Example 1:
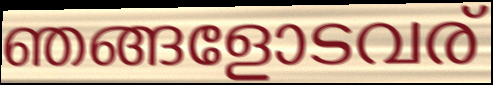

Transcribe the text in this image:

ഞങ്ങളോടവര്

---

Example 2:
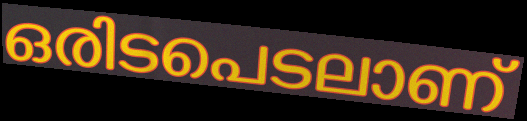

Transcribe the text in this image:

ഒരിടപെടലാണ്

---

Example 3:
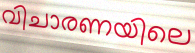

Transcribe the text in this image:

വിചാരണയിലെ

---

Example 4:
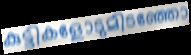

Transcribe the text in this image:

കുട്ടികളോടുമിടഞ്ഞോ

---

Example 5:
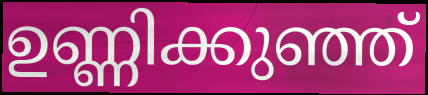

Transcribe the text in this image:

ഉണ്ണിക്കുഞ്ഞ്